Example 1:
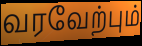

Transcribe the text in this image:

வரவேற்பும்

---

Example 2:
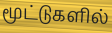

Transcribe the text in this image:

மூட்டுகளில்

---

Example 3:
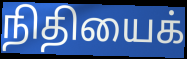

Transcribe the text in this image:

நிதியைக்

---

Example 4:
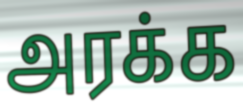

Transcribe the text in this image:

அரக்க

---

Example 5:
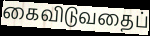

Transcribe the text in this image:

கைவிடுவதைப்